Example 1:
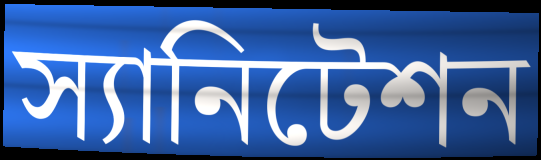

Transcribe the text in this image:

স্যানিটেশন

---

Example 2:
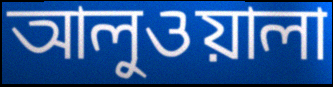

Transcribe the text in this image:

আলুওয়ালা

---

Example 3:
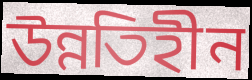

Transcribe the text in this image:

উন্নতিহীন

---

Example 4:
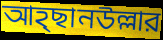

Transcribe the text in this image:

আহ্ছানউল্লার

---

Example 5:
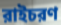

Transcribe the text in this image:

রাইচরণ